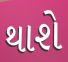
થાશે